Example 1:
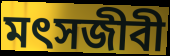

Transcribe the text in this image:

মৎসজীবী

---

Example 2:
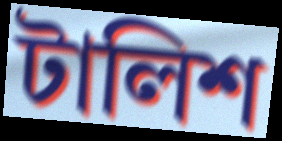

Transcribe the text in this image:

টালিশ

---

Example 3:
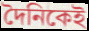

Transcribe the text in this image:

দৈনিকেই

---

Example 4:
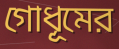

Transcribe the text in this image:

গোধূমের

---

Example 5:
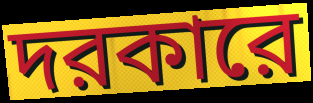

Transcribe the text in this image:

দরকারে